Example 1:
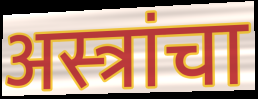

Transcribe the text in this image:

अस्त्रांचा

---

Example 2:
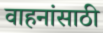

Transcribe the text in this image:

वाहनांसाठी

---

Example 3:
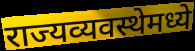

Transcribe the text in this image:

राज्यव्यवस्थेमध्ये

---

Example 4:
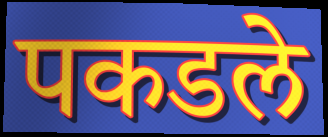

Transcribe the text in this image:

पकडले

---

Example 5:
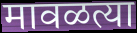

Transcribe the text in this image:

मावळत्या